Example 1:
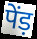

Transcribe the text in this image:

पेंड़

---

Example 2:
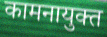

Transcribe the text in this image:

कामनायुक्त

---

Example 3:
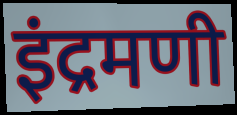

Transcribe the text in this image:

इंद्रमणी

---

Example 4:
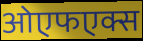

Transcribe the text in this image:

ओएफएक्स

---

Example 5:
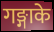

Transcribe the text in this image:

गङ्गाके